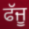
ਫੱਜੂ